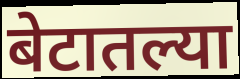
बेटातल्या